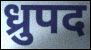
ध्रुपद